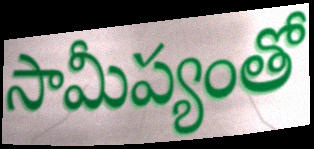
సామీప్యంతో